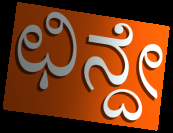
ಛಿನ್ದೇ